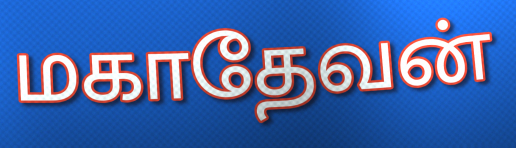
மகாதேவன்